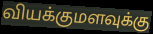
வியக்குமளவுக்கு